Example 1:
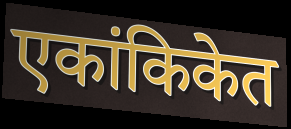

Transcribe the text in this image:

एकांकिकेत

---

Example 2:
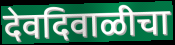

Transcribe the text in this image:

देवदिवाळीचा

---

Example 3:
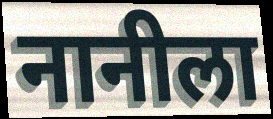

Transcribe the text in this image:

नानीला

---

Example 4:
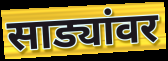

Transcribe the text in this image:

साड्यांवर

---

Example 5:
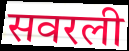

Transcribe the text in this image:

सवरली